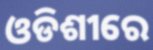
ଓଡିଶୀରେ